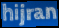
hijran